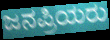
ಜನಪ್ರಿಯರು